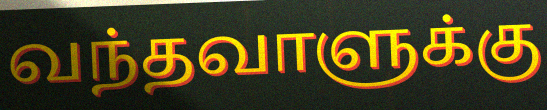
வந்தவாளுக்கு